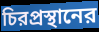
চিরপ্রস্থানের